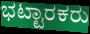
ಭಟ್ಟಾರಕರು